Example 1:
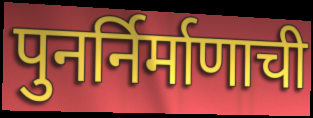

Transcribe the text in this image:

पुनर्निर्माणाची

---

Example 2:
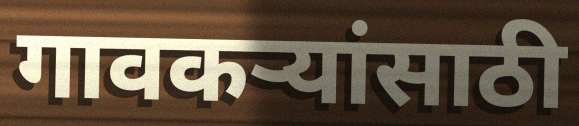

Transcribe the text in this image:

गावकऱ्यांसाठी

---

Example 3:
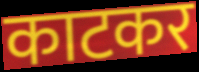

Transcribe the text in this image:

काटकर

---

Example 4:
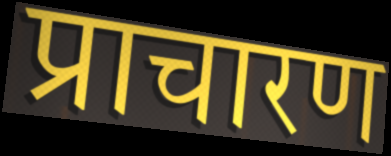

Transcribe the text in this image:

प्राचारण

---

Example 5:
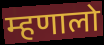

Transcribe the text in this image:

म्हणालो